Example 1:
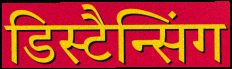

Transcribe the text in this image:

डिस्टैन्सिंग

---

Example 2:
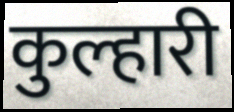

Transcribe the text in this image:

कुल्हारी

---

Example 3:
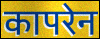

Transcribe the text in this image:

कापरेन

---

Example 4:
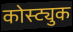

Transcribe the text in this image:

कोस्ट्युक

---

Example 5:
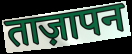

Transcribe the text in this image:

ताज़ापन